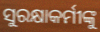
ସୁରକ୍ଷାକର୍ମୀଙ୍କୁ